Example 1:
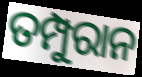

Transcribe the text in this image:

ତମ୍ପୁରାନ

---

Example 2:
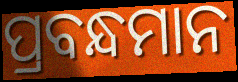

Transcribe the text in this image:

ପ୍ରବନ୍ଧମାନ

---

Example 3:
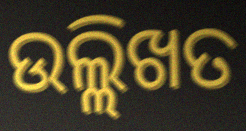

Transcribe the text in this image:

ଉଲ୍ଲିଖତ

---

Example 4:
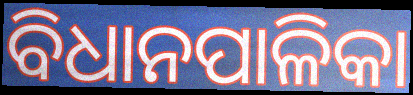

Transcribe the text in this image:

ବିଧାନପାଳିକା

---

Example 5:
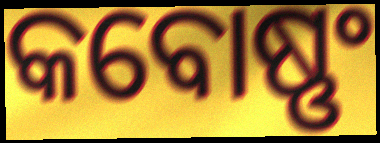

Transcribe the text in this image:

କବୋଷ୍ଣଂ